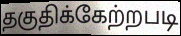
தகுதிக்கேற்றபடி